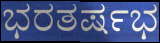
ಭರತರ್ಷಭ